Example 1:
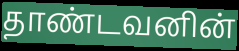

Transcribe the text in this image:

தாண்டவனின்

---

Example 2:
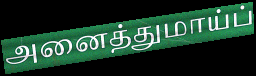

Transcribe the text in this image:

அனைத்துமாய்ப்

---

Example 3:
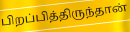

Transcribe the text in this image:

பிறப்பித்திருந்தான்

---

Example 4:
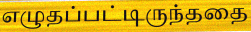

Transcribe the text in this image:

எழுதப்பட்டிருந்ததை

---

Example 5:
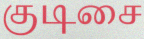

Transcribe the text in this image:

குடிசை